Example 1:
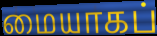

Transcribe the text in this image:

மையாகப்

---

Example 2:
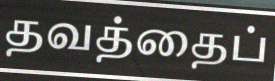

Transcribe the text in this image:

தவத்தைப்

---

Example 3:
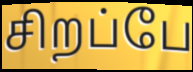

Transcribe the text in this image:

சிறப்பே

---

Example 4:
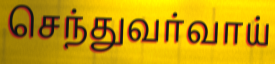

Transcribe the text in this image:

செந்துவர்வாய்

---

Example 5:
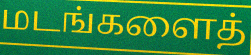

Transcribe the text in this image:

மடங்களைத்